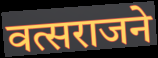
वत्सराजने